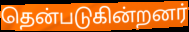
தென்படுகின்றனர்